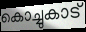
കൊച്ചുകാട്